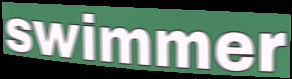
swimmer